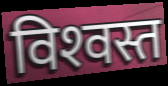
विश्‍वस्त